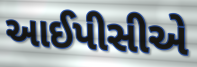
આઈપીસીએ